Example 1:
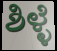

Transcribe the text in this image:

ಶಿಳ್ಳೆ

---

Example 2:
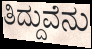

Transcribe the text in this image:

ತಿದ್ದುವೆನು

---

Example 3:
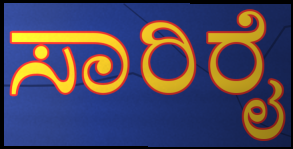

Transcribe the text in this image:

ಸಾರಿರೈ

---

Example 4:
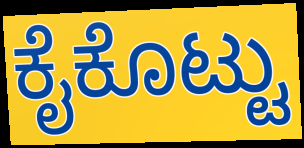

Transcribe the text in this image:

ಕೈಕೊಟ್ಟು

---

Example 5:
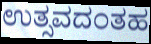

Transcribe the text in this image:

ಉತ್ಸವದಂತಹ